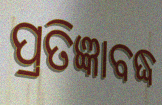
ପ୍ରତିଜ୍ଞାବଦ୍ଧ